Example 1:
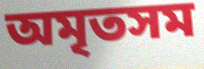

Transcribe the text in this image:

অমৃতসম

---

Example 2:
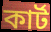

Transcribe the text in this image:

কার্ট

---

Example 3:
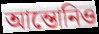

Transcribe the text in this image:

আন্তোনিও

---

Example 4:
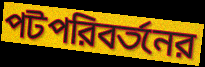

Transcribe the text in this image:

পটপরিবর্তনের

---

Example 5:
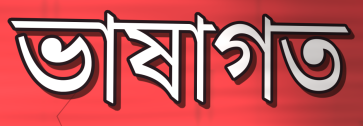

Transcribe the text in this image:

ভাষাগত